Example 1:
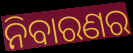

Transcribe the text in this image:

ନିବାରଣର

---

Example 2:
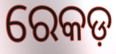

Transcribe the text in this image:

ରେକଡ଼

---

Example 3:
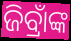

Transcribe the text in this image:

ଜିବ୍ରାଁଙ୍କ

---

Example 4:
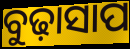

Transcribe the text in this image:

ବୁଢ଼ାସାପ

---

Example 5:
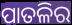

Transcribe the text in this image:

ପାତଳିର